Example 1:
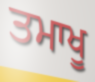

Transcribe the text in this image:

ਤਮਾਖੂ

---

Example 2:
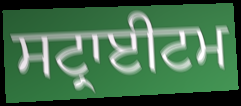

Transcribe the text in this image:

ਸਟ੍ਰਾਈਟਮ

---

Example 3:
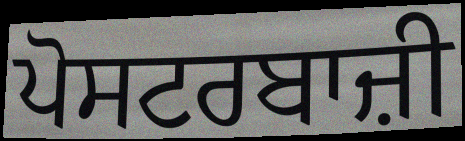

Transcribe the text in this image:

ਪੋਸਟਰਬਾਜ਼ੀ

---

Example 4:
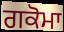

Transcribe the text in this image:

ਗਕੋਮਾ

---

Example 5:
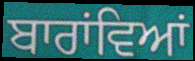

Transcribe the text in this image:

ਬਾਰਾਂਵਿਆਂ